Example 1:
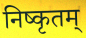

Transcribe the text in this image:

निष्कृतम्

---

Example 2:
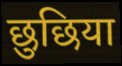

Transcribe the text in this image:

छुछिया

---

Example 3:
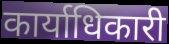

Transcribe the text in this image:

कार्याधिकारी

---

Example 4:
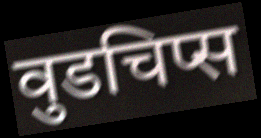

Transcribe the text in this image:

वुडचिप्स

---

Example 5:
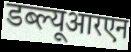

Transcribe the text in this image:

डब्ल्यूआरएन